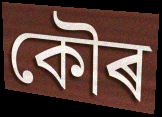
কৌৰ